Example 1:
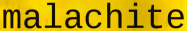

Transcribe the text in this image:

malachite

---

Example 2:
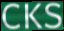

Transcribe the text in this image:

CKS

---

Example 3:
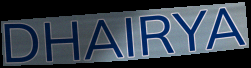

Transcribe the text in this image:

DHAIRYA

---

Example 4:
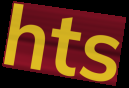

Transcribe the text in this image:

hts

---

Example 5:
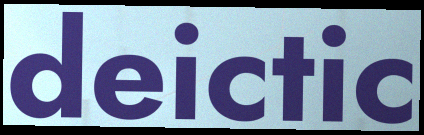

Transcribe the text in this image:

deictic